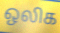
ஒலிக